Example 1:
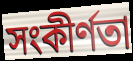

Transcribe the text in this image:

সংকীর্ণতা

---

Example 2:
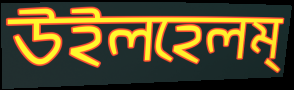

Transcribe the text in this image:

উইলহেলম্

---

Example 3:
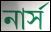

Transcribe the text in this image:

নার্স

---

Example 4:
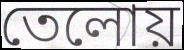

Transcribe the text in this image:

তেলোয়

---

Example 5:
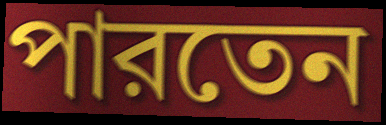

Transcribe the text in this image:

পারতেন